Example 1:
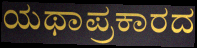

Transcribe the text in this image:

ಯಥಾಪ್ರಕಾರದ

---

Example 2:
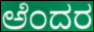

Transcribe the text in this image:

ಅೆಂದರ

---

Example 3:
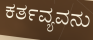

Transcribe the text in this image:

ಕರ್ತವ್ಯವನು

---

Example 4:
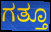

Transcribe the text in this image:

ಗತ್ತೂ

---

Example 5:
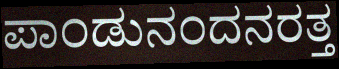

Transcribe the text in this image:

ಪಾಂಡುನಂದನರತ್ತ